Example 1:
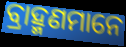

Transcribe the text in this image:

ବ୍ରାହ୍ମଣମାନେ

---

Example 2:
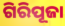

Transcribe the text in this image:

ଗିରିପୂଜା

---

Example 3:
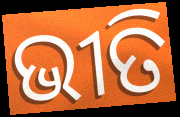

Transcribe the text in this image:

ଭୀତି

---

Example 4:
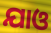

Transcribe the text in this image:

ଯାଓ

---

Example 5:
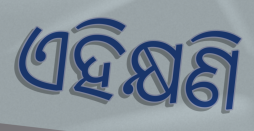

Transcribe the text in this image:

ଏହିକ୍ଷଣି